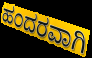
ಹಂದರವಾಗಿ